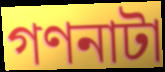
গণনাটা